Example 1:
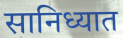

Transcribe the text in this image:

सानिध्यात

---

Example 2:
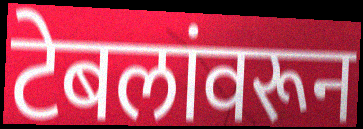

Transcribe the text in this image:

टेबलांवरून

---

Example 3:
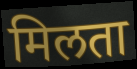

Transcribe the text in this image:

मिलता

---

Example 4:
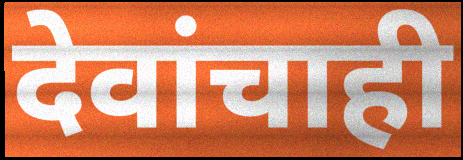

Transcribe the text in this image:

देवांचाही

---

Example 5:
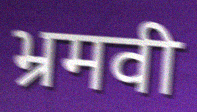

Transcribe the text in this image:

भ्रमवी